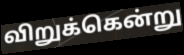
விறுக்கென்று